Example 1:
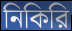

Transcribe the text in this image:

নিকিরি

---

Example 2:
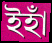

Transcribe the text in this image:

ইহাঁ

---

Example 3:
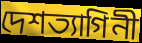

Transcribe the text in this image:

দেশত্যাগিনী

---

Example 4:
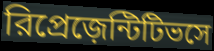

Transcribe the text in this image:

রিপ্রেজ়েন্টিটিভসে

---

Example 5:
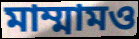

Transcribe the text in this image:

মাম্মামও